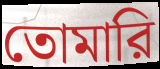
তোমারি